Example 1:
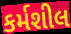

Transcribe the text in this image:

કર્મશીલ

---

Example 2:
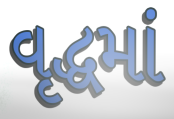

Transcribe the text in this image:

વૃદ્ધમાં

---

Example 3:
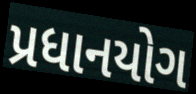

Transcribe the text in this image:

પ્રધાનયોગ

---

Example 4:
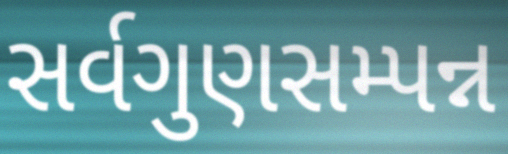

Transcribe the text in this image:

સર્વગુણસમ્પન્ન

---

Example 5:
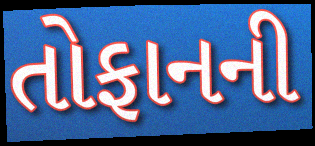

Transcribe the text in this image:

તોફાનની